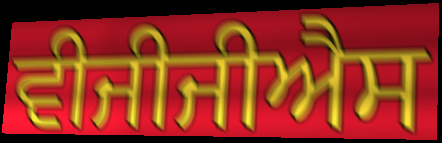
ਵੀਜੀਜੀਐਸ